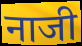
नाजी